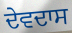
ਦੇਵਦਾਸ